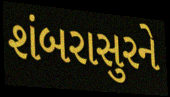
શંબરાસુરને